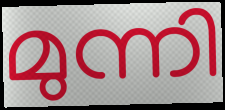
മുന്നി